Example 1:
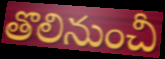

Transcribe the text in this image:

తొలినుంచీ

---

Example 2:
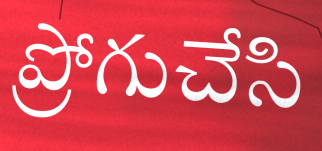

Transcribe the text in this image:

ప్రోగుచేసి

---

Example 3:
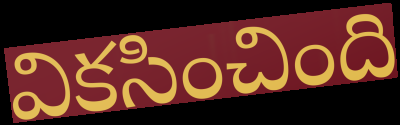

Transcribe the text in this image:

వికసించింది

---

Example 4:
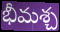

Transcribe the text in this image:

భీమశ్చ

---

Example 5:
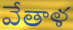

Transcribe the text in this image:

వేతాళ